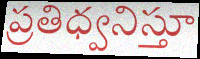
ప్రతిధ్వనిస్తూ